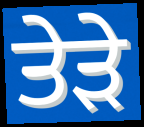
ਤੇੜੇ